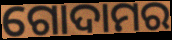
ଗୋଦାମର